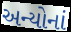
અન્યોનાં